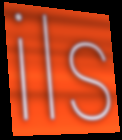
ils